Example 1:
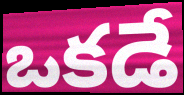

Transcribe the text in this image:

ఒకడే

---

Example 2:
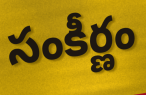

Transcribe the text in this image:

సంకీర్ణం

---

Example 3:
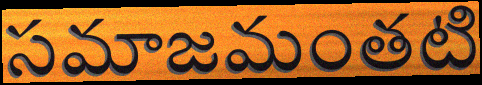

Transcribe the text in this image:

సమాజమంతటి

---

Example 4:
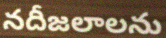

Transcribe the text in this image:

నదీజలాలను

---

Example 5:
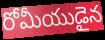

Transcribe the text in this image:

రోమీయుడైన